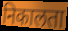
निकालता